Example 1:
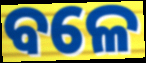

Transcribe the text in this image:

ବଳେ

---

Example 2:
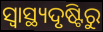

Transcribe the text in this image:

ସ୍ୱାସ୍ଥ୍ୟଦୃଷ୍ଟିରୁ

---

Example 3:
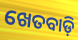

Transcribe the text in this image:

ଖେତବାଡ଼ି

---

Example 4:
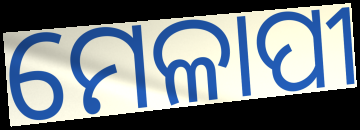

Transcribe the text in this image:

ମେଳାପୀ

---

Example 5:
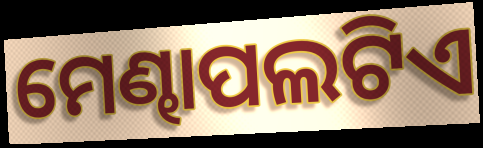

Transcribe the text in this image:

ମେଣ୍ଢାପଲଟିଏ